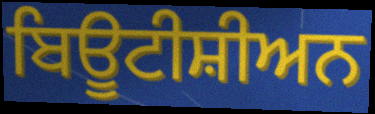
ਬਿਊਟੀਸ਼ੀਅਨ